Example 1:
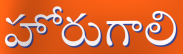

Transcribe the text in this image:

హోరుగాలి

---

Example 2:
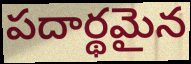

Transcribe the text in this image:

పదార్థమైన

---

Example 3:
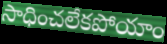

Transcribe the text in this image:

సాధించలేకపోయాం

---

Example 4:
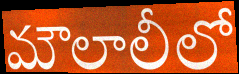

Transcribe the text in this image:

మౌలాలీలో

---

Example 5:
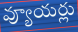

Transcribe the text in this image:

వ్యూయర్లు